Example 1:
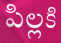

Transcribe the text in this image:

పిల్లకి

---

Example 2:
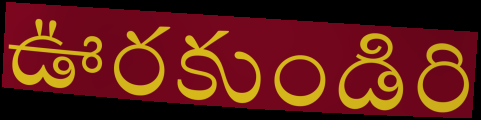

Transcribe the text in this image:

ఊరకుండిరి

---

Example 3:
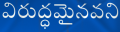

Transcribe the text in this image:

విరుద్ధమైనవని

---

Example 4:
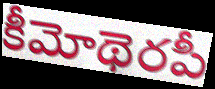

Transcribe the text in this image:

కీమోథెరపీ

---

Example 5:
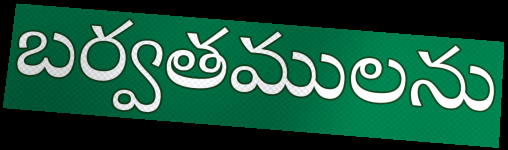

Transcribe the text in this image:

బర్వతములను